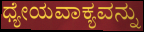
ಧ್ಯೇಯವಾಕ್ಯವನ್ನು